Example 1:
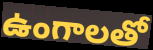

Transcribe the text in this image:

ఉంగాలతో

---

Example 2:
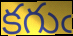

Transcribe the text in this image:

కగుఁ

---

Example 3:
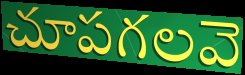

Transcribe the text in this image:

చూపగలవె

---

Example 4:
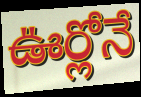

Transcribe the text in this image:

ఊర్లోనే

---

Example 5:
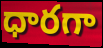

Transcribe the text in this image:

ధారగా